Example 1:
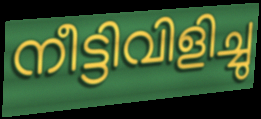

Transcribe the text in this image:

നീട്ടിവിളിച്ചു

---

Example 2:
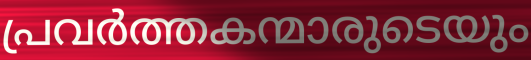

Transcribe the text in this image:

പ്രവർത്തകന്മാരുടെയും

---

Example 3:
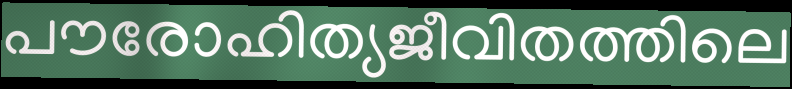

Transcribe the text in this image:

പൗരോഹിത്യജീവിതത്തിലെ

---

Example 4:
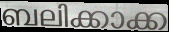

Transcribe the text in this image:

ബലിക്കാക്ക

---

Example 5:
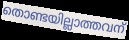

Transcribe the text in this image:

തൊണ്ടയില്ലാത്തവന്